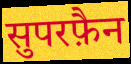
सुपरफ़ैन